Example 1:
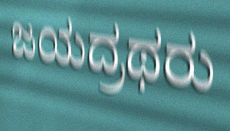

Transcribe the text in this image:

ಜಯದ್ರಥರು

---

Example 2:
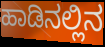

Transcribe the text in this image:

ಹಾಡಿನಲ್ಲಿನ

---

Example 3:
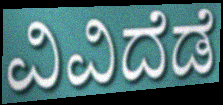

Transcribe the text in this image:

ವಿವಿದೆಡೆ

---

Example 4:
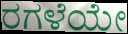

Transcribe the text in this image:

ರಗಳೆಯೇ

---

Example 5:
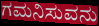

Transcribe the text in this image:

ಗಮನಿಸುವನು